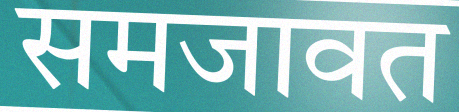
समजावत